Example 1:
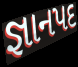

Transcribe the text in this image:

જ્ઞાનપદ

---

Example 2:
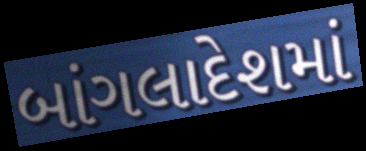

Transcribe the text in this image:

બાંગલાદેશમાં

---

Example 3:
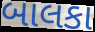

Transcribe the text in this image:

બાલકા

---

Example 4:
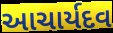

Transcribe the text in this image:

આચાર્યદવ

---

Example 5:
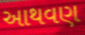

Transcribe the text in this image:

આથવણ